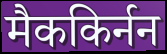
मैककिर्नन